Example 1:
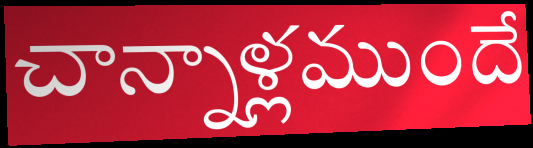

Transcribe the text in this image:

చాన్నాళ్లముందే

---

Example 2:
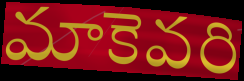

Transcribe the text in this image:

మాకెవరి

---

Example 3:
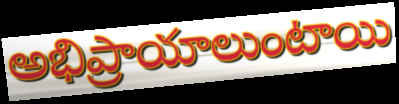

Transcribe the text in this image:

అభిప్రాయాలుంటాయి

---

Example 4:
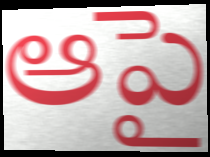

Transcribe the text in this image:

ఆపై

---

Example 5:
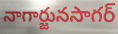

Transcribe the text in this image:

నాగార్జునసాగర్